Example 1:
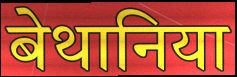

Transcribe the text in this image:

बेथानिया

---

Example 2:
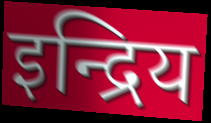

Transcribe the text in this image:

इन्द्रिय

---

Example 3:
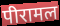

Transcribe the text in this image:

पीरामल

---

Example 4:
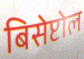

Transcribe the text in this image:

बिसेप्टोल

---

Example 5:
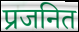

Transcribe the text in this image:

प्रजनित